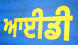
ਆਈਡੀ